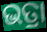
ଭତ୍ରା